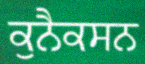
ਕੁਨੈਕਸਨ